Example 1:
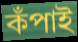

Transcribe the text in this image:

কঁপাই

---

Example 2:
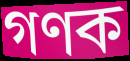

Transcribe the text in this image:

গণক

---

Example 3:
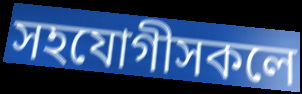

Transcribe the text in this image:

সহযোগীসকলে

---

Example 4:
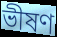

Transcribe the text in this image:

ভীষণ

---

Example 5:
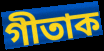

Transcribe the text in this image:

গীতাক